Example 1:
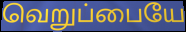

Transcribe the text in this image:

வெறுப்பையே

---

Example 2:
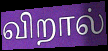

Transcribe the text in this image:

விறால்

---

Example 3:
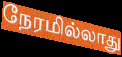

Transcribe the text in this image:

நேரமில்லாது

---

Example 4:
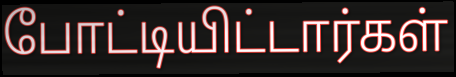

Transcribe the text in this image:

போட்டியிட்டார்கள்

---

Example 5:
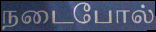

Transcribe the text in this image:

நடைபோல்